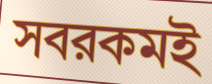
সবরকমই